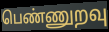
பெண்ணுறவு